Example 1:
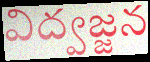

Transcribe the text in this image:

విద్వజ్జన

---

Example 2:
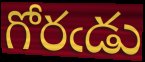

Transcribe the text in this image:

గోరఁడు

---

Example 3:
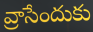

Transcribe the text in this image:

వ్రాసేందుకు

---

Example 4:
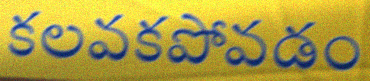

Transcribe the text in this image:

కలవకపోవడం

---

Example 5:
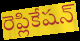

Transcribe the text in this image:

రెప్లికేషన్